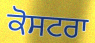
ਕੋਸਟਰਾ